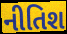
નીતિશ